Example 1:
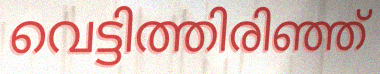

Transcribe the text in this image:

വെട്ടിത്തിരിഞ്ഞ്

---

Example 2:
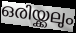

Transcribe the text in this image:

ഒരിയ്ക്കലും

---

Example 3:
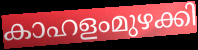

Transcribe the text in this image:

കാഹളംമുഴക്കി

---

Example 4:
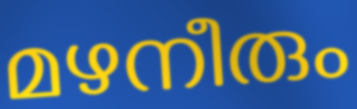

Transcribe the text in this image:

മഴനീരും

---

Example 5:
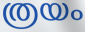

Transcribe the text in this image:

ത്രയം